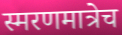
स्मरणमात्रेच